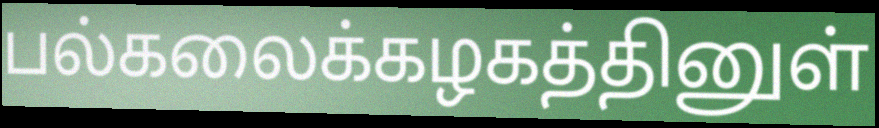
பல்கலைக்கழகத்தினுள்